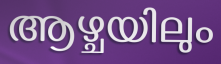
ആഴ്ചയിലും